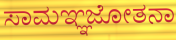
ಸಾಮಞ್ಞಜೋತನಾ